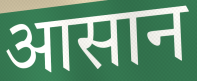
आसान